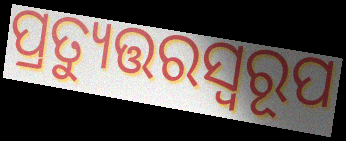
ପ୍ରତ୍ୟୁତ୍ତରସ୍ଵରୂପ